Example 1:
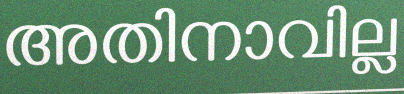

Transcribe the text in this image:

അതിനാവില്ല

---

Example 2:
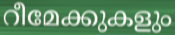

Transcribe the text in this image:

റീമേക്കുകളും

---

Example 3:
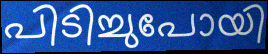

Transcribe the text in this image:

പിടിച്ചുപോയി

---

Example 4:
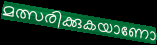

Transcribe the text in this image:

മത്സരിക്കുകയാണോ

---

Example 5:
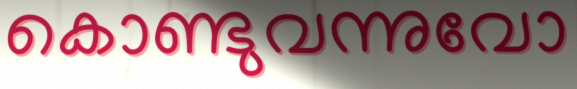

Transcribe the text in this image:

കൊണ്ടുവന്നുവോ